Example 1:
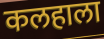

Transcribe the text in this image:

कलहाला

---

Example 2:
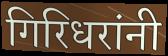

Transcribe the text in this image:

गिरिधरांनी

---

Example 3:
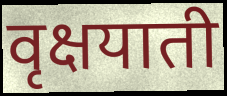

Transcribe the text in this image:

वृक्षयाती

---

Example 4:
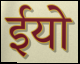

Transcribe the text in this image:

ईयो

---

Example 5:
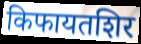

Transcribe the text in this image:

किफायतशिर